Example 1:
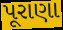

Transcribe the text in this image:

પૂરાણા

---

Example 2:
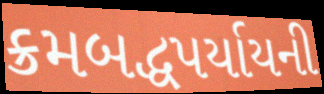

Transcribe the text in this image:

ક્રમબદ્ધપર્યાયની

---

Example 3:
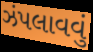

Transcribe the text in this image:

ઝંપલાવવું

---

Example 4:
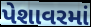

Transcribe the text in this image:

પેશાવરમાં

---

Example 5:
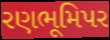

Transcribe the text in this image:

રણભૂમિપર